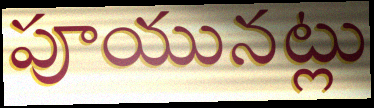
పూయునట్లు